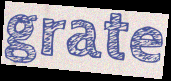
grate